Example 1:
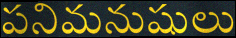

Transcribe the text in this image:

పనిమనుషులు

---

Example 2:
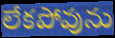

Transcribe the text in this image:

లేకపోవును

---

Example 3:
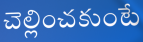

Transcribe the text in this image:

చెల్లించకుంటే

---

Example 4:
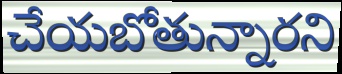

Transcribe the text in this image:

చేయబోతున్నారని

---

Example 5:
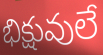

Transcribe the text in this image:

భిక్షువులే